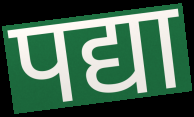
पद्या